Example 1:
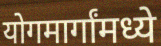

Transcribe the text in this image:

योगमार्गांमध्ये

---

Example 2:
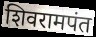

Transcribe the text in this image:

शिवरामपंत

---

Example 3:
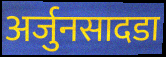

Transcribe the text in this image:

अर्जुनसादडा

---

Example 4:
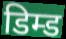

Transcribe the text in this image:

डिम्ड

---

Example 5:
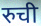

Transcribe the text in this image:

रुची